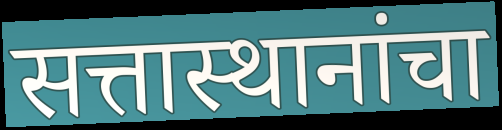
सत्तास्थानांचा